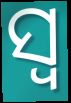
ସ୍ୱ